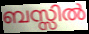
ബസ്സിൽ